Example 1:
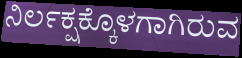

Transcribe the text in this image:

ನಿರ್ಲಕ್ಷಕ್ಕೊಳಗಾಗಿರುವ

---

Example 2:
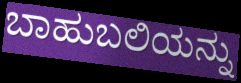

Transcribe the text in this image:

ಬಾಹುಬಲಿಯನ್ನು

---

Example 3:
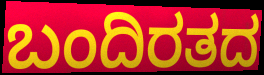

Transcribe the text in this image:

ಬಂದಿರತದ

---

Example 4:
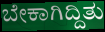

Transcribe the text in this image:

ಬೇಕಾಗಿದ್ದಿತು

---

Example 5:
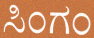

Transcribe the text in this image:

ಸಿಂಗಂ